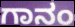
ಗಾನಂ